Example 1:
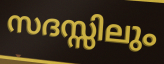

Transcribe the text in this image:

സദസ്സിലും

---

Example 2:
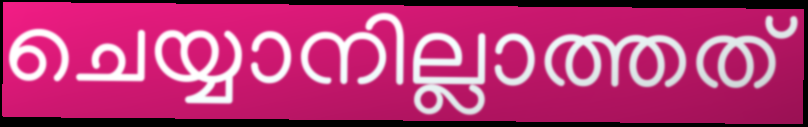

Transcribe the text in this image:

ചെയ്യാനില്ലാത്തത്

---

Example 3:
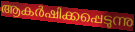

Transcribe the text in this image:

ആകർഷിക്കപ്പെടുന്നു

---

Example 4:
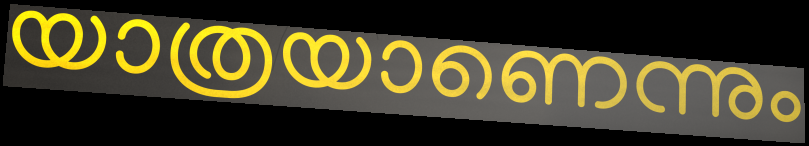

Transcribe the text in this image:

യാത്രയാണെന്നും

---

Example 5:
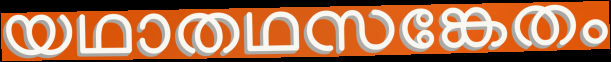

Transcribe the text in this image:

യഥാതഥസങ്കേതം